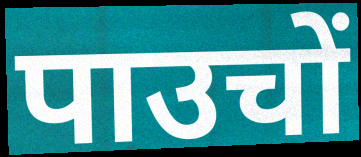
पाउचों